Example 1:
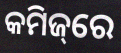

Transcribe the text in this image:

କମିଜ୍‌ରେ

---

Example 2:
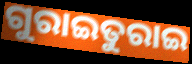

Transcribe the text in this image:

ଗୁରାଇତୁରାଇ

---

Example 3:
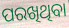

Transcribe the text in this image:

ପରଖିଥିବା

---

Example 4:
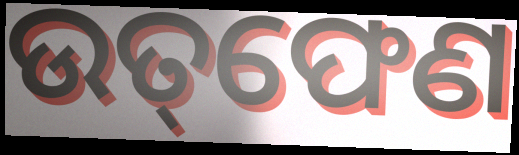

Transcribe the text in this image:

ଉତ୍‌ଫେଣ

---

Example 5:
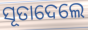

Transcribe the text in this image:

ସୂତାଦେଲେ